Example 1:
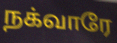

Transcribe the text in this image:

நக்வாரே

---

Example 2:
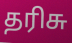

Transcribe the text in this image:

தரிசு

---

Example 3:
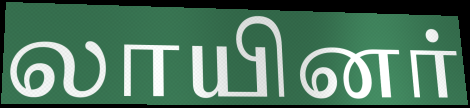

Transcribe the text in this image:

லாயினர்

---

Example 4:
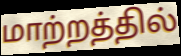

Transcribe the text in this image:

மாற்றத்தில்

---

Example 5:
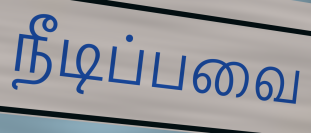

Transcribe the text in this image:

நீடிப்பவை